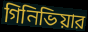
গিনিভিয়ার